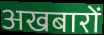
अखबारों